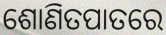
ଶୋଣିତପାତରେ